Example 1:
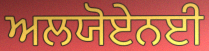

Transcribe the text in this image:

ਅਲਯੋਏਨਈ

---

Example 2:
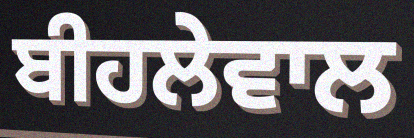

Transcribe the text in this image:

ਬੀਹਲੇਵਾਲ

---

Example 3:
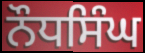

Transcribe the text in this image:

ਨੌਧਸਿੰਘ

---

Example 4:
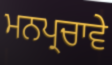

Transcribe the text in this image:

ਮਨਪ੍ਰਚਾਵੇ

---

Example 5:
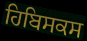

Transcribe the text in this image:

ਹਿਬਿਸਕਸ